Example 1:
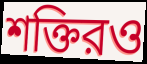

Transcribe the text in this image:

শক্তিরও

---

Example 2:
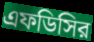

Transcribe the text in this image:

এফডিসির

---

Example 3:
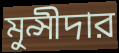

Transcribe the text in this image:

মুন্সীদার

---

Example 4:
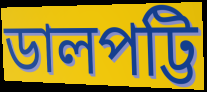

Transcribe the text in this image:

ডালপট্টি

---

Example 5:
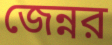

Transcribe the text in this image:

জেন্নর